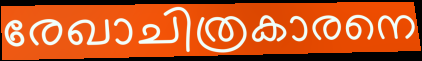
രേഖാചിത്രകാരനെ